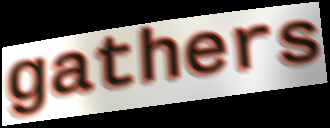
gathers